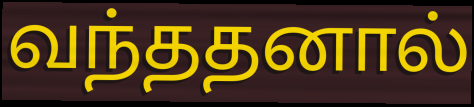
வந்ததனால்